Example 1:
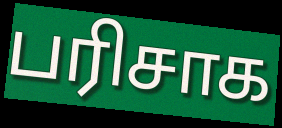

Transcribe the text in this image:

பரிசாக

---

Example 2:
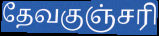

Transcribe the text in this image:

தேவகுஞ்சரி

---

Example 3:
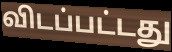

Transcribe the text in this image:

விடப்பட்டது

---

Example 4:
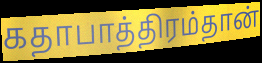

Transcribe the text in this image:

கதாபாத்திரம்தான்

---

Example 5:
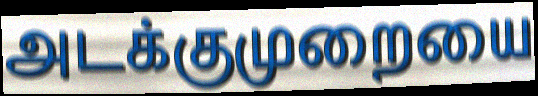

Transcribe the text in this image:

அடக்குமுறையை